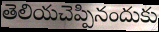
తెలియచెప్పినందుకు